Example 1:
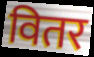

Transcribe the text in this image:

वितर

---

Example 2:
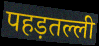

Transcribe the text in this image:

पहड़तल्ली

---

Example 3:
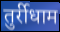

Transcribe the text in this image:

तुर्रीधाम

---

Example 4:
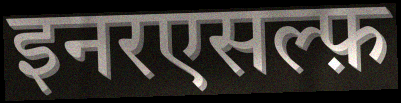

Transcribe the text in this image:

इनरएसल्फ़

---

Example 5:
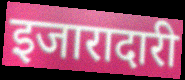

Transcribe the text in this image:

इजारादारी